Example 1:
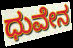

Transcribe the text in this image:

ಧುವೇನ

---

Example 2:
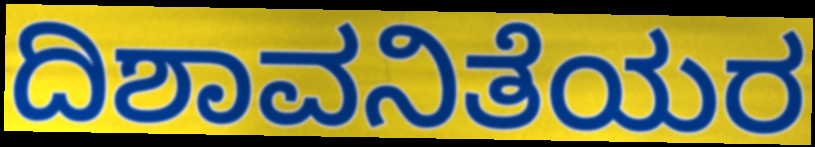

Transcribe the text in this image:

ದಿಶಾವನಿತೆಯರ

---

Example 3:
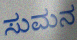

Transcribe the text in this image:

ಸುಮನ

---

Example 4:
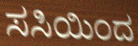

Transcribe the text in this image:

ಸಸಿಯಿಂದ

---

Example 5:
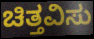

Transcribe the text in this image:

ಚಿತ್ತವಿಸು